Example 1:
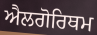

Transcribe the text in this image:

ਐਲਗੋਰਿਥਮ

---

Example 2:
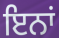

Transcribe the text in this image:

ਇਨਾਂ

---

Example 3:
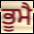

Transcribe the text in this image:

ਭੂਮੈ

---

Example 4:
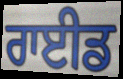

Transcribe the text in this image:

ਰਾਈਡ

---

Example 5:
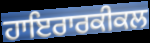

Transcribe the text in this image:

ਹਾਇਰਾਰਕੀਕਲ